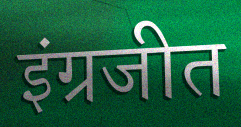
इंग्रजीत